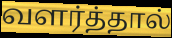
வளர்த்தால்